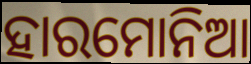
ହାରମୋନିଆ